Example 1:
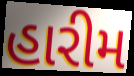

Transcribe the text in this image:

હારીમ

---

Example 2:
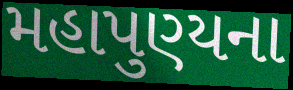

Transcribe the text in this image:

મહાપુણ્યના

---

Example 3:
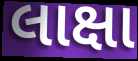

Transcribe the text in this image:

લાક્ષા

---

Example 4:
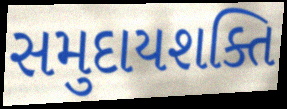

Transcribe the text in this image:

સમુદાયશક્તિ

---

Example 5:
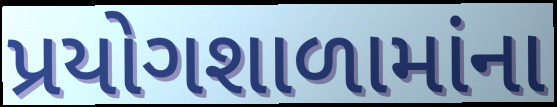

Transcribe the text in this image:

પ્રયોગશાળામાંના